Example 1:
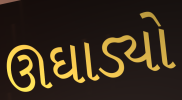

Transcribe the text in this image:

ઊઘાડ્યો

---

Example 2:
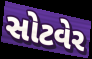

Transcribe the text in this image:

સોટવેર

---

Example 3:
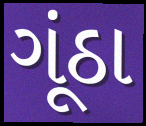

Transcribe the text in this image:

ગૂંઠા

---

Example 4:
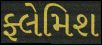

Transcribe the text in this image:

ફ્લેમિશ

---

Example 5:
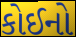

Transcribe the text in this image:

કોઈનો